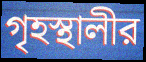
গৃহস্থালীর